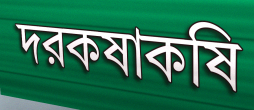
দরকষাকষি